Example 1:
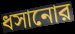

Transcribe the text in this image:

ধসানোর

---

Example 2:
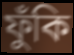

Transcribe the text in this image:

ফুঁকি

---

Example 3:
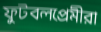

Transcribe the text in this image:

ফুটবলপ্রেমীরা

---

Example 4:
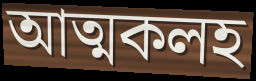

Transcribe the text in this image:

আত্মকলহ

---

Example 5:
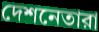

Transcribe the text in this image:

দেশনেতারা